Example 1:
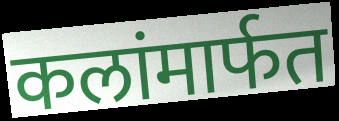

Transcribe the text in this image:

कलांमार्फत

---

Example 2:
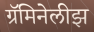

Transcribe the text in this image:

ग्रॅमिनेलीझ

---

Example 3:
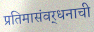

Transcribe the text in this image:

प्रतिमासंवर्धनाची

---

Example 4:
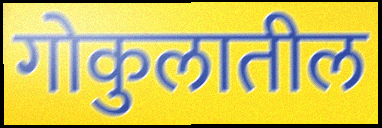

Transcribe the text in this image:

गोकुलातील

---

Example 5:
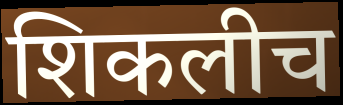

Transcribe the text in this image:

शिकलीच